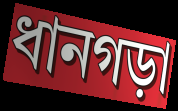
ধানগড়া